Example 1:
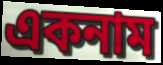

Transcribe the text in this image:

একনাম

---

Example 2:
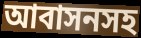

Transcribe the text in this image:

আবাসনসহ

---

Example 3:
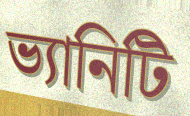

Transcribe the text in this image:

ভ্যানিটি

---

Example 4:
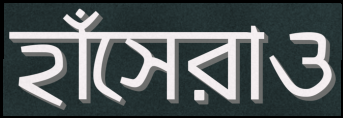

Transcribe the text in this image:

হাঁসেরাও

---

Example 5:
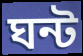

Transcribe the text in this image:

ঘন্ট